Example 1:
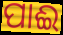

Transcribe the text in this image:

ପାଈ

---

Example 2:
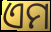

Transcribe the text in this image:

ଏମ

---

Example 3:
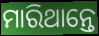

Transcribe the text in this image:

ମାରିଥାନ୍ତେ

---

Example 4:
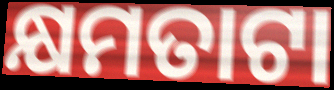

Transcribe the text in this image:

କ୍ଷମତାଟା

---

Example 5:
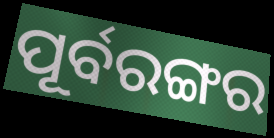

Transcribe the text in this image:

ପୂର୍ବରଙ୍ଗର